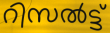
റിസൽട്ട്